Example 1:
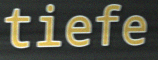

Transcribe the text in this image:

tiefe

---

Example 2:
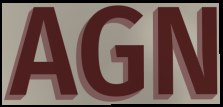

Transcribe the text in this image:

AGN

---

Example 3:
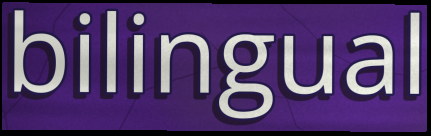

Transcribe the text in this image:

bilingual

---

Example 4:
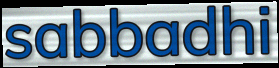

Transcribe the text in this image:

sabbadhi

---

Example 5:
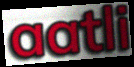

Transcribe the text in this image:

aatli